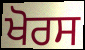
ਖੋਰਸ